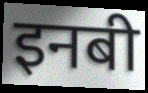
इनबी